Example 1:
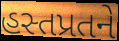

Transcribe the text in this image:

હસ્તપ્રતને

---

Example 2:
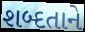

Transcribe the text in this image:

શબ્દતાને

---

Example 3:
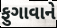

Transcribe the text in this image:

ફુગાવાને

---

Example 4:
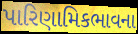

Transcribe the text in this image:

પારિણામિકભાવના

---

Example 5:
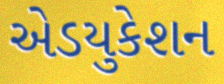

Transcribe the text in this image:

એડયુકેશન